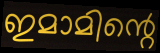
ഇമാമിന്റെ